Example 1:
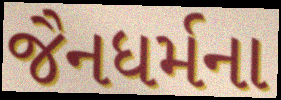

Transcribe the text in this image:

જૈનધર્મના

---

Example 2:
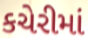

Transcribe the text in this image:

કચેરીમાં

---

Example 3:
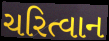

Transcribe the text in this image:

ચરિત્વાન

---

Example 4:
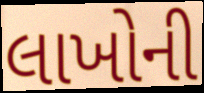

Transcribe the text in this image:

લાખોની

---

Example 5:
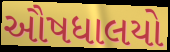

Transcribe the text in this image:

ઔષધાલયો